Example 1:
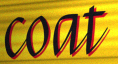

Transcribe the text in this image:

coat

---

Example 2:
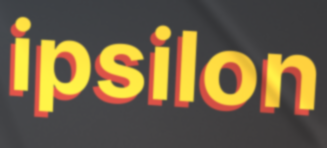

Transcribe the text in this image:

ipsilon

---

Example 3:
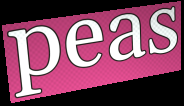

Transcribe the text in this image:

peas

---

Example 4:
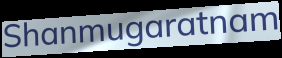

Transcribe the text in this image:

Shanmugaratnam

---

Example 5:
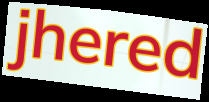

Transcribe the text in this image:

jhered